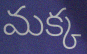
మక్క